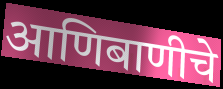
आणिबाणीचे